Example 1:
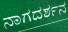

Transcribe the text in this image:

ನಾಗದರ್ಶನ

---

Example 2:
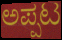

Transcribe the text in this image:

ಅಪ್ಪಟ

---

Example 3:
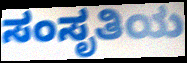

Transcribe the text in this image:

ಸಂಸೃತಿಯ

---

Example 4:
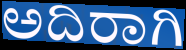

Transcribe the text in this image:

ಅದಿರಾಗಿ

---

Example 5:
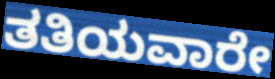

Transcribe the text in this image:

ತತಿಯವಾರೇ